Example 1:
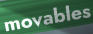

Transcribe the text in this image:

movables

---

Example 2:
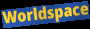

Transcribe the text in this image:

Worldspace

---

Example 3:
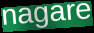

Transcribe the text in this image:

nagare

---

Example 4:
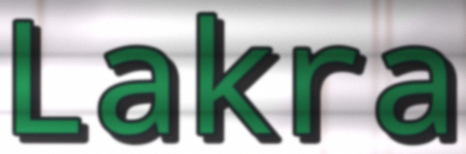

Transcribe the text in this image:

Lakra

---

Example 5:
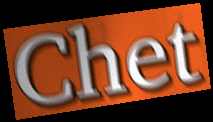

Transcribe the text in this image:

Chet